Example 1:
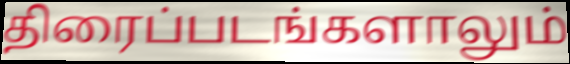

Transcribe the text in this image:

திரைப்படங்களாலும்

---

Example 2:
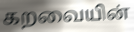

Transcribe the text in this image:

கறவையின்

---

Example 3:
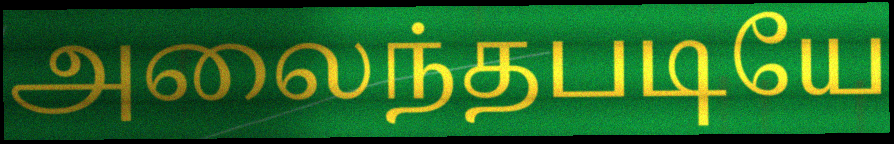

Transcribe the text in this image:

அலைந்தபடியே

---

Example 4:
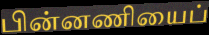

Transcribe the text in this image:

பின்னணியைப்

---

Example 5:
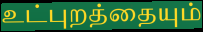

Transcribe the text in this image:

உட்புறத்தையும்